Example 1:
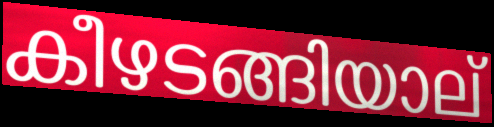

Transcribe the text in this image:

കീഴടങ്ങിയാല്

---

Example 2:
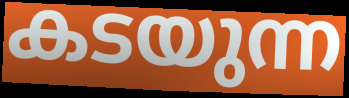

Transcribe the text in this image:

കടയുന്ന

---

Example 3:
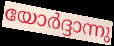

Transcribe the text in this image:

യോർദ്ദാന്നു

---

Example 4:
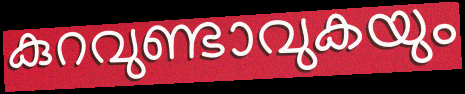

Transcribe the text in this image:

കുറവുണ്ടാവുകയും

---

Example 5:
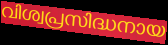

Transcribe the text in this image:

വിശ്വപ്രസിദ്ധനായ